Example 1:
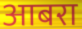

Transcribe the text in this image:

आबरा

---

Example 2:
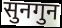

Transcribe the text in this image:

सुनगुन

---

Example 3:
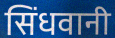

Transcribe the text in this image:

सिंधवानी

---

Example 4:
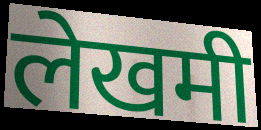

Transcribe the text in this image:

लेखमी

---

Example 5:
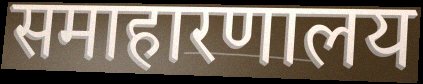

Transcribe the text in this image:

समाहारणालय